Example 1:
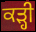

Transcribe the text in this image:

ਕੜ੍ਹੀ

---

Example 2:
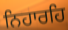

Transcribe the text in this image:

ਨਿਹਾਰਹਿ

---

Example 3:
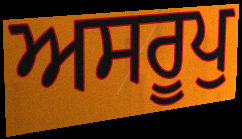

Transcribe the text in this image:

ਅਸਰੂਪੁ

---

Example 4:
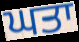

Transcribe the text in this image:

ਘਤਾ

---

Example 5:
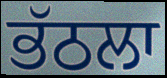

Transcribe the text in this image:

ਭੱਠਲਾ